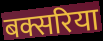
बक्सरिया